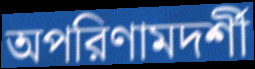
অপরিণামদর্শী